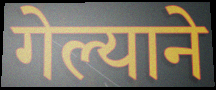
गेल्‍याने